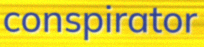
conspirator